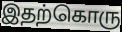
இதற்கொரு